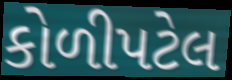
કોળીપટેલ